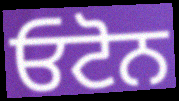
ਓਟੋਨ